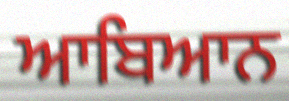
ਆਬਿਆਨ